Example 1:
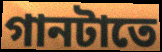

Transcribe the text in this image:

গানটাতে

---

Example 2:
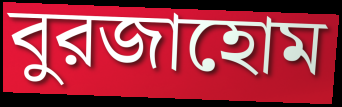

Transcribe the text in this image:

বুরজাহোম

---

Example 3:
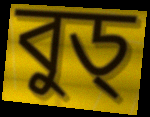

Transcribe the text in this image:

বুড্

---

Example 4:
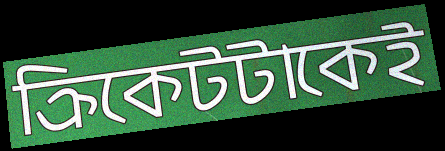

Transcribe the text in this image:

ক্রিকেটটাকেই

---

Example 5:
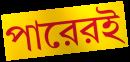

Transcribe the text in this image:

পারেরই